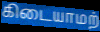
கிடையாமற்